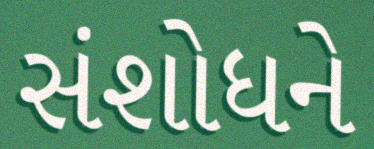
સંશોધને